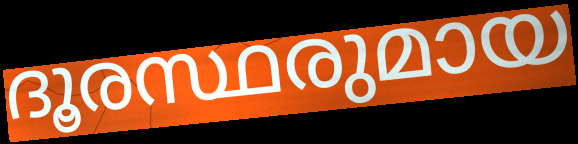
ദൂരസ്ഥരുമായ